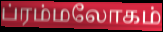
ப்ரம்மலோகம்